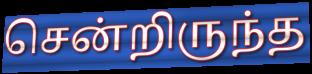
சென்றிருந்த